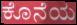
ಕೊನೆಯ